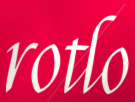
rotlo